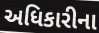
અધિકારીના